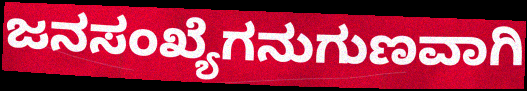
ಜನಸಂಖ್ಯೆಗನುಗುಣವಾಗಿ